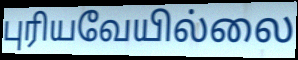
புரியவேயில்லை